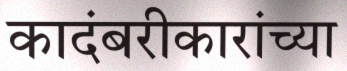
कादंबरीकारांच्या